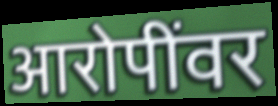
आरोपींवर